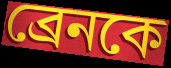
ব্রেনকে